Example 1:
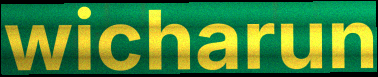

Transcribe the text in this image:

wicharun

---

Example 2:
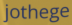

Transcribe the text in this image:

jothege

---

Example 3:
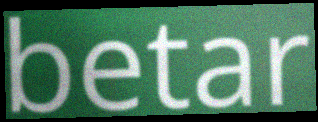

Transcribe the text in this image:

betar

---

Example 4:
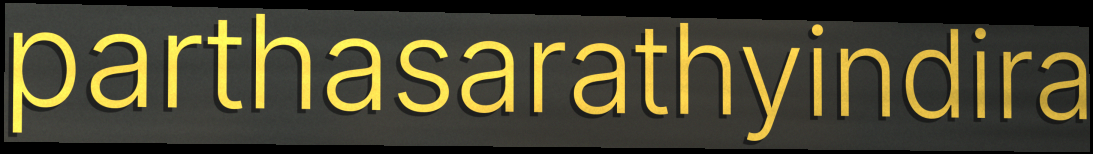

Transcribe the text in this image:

parthasarathyindira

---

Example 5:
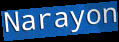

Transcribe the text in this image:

Narayon